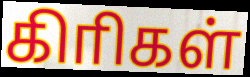
கிரிகள்